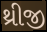
થ્રીજી